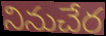
నినుచేర